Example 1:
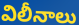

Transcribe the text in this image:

విలీనాలు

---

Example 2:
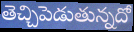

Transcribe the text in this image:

తెచ్చిపెడుతున్నదో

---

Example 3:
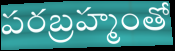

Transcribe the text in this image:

పరబ్రహ్మంతో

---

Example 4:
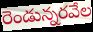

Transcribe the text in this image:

రెండున్నరవేల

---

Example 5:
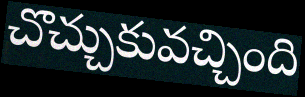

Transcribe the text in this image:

చొచ్చుకువచ్చింది